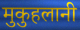
मुकुहलानी